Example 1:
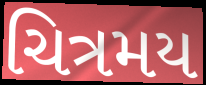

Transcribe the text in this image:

ચિત્રમય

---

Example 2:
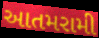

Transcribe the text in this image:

આતમરામી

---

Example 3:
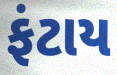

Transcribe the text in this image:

ફંટાય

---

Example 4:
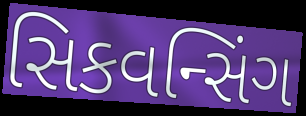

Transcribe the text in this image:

સિકવન્સિંગ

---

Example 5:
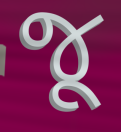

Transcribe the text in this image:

જૂ